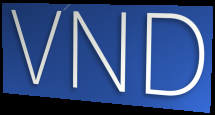
VND